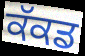
ਕੱਕਡ